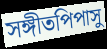
সঙ্গীতপিপাসু